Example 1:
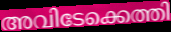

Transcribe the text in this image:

അവിടേക്കെത്തി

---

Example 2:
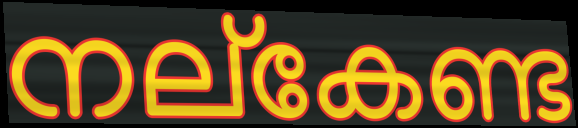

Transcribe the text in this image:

നല്കേണ്ട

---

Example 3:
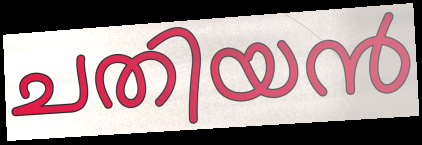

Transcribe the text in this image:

ചതിയൻ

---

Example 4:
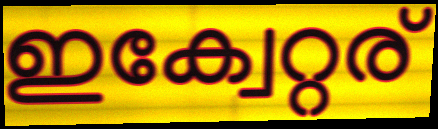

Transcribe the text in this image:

ഇക്വേറ്റര്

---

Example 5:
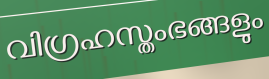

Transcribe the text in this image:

വിഗ്രഹസ്തംഭങ്ങളും